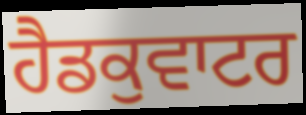
ਹੈਡਕੁਵਾਟਰ